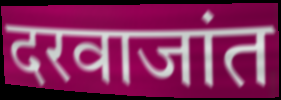
दरवाजांत